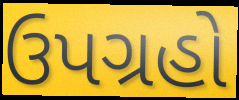
ઉપગ્રહો